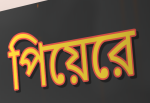
পিয়েরে